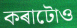
কৰাটোও